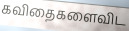
கவிதைகளைவிட